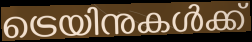
ട്രെയിനുകൾക്ക്